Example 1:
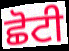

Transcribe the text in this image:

ਛੋਟੀ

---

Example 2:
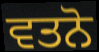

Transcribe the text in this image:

ਵਤਨੋ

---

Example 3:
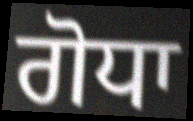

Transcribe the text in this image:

ਗੋਧਾ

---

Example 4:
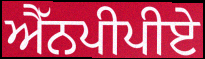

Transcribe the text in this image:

ਐੱਨਪੀਪੀਏ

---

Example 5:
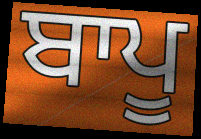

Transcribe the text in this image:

ਬਾਪੂ